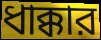
ধাক্কার